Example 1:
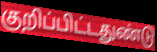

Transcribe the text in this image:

குறிப்பிட்டதுண்டு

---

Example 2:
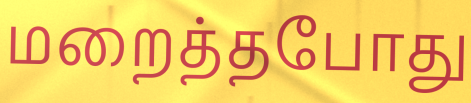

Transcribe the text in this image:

மறைத்தபோது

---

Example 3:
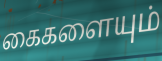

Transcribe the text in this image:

கைகளையும்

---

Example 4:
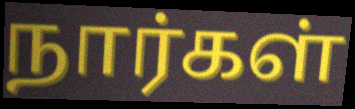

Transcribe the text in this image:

நார்கள்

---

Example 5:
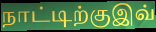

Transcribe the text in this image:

நாட்டிற்குஇவ்